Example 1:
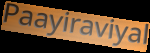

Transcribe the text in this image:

Paayiraviyal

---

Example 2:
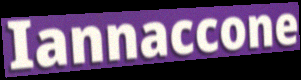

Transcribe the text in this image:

Iannaccone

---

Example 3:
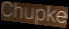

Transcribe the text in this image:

Chupke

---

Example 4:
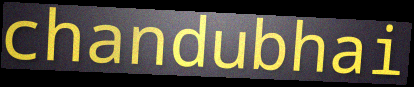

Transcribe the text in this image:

chandubhai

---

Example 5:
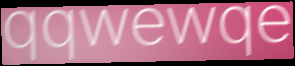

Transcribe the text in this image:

qqwewqe